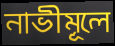
নাভীমূলে